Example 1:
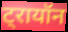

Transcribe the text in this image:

ट्रायॉन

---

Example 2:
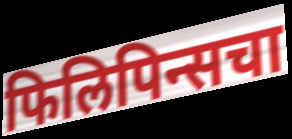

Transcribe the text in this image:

फिलिपिन्सचा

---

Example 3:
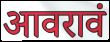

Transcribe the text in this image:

आवरावं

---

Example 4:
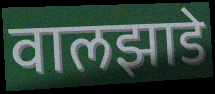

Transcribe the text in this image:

वालझाडे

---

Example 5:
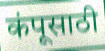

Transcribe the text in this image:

कंपूसाठी